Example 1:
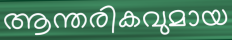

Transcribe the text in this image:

ആന്തരികവുമായ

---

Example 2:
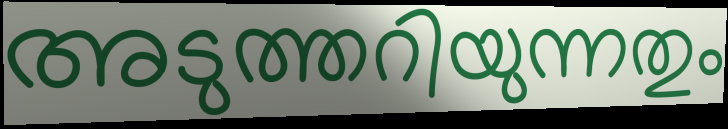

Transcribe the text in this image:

അടുത്തറിയുന്നതും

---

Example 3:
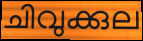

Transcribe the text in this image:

ചിവുക്കുല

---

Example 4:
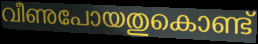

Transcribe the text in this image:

വീണുപോയതുകൊണ്ട്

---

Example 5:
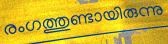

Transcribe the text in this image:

രംഗത്തുണ്ടായിരുന്നു